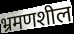
भ्रमणशील